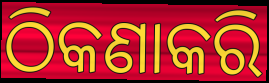
ଠିକଣାକରି